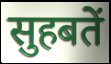
सुहबतें